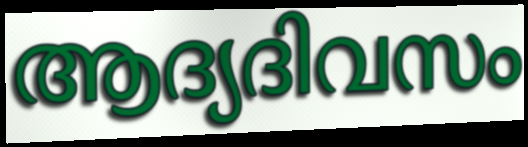
ആദ്യദിവസം